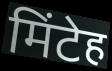
मिंटेह